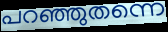
പറഞ്ഞുതന്നെ